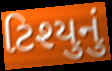
ટિશ્યુનું